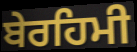
ਬੇਰਹਿਮੀ